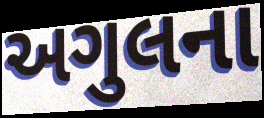
અગુલના